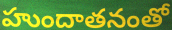
హుందాతనంతో